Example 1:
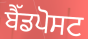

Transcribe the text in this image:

ਬੈੱਡਪੋਸਟ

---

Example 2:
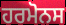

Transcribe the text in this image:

ਹਰਮੋਨਸ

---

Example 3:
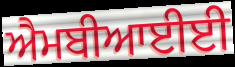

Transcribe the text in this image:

ਐਮਬੀਆਈਈ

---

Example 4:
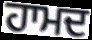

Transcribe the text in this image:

ਹਾਮਦ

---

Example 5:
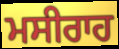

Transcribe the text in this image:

ਮਸੀਰਾਹ